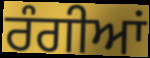
ਰੰਗੀਆਂ